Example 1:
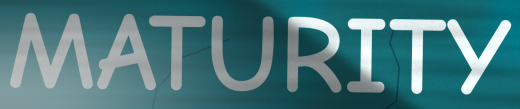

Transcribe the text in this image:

MATURITY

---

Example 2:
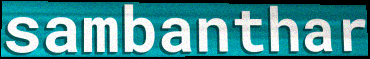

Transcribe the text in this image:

sambanthar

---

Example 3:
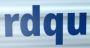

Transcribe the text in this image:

rdqu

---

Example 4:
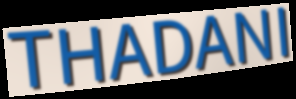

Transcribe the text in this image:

THADANI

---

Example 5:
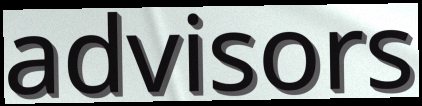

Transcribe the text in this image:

advisors